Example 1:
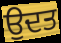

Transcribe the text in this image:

ਉਦਤ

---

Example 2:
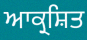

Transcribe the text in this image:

ਆਕ੍ਰਸ਼ਿਤ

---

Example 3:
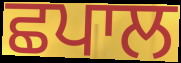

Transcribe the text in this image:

ਛਪਾਲ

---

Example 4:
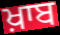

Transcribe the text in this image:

ਖ਼ਾਬ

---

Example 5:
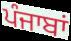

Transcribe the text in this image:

ਪੰਜਾਬਾਂ